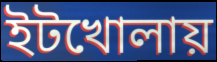
ইটখোলায়